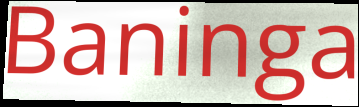
Baninga